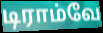
டிராம்வே